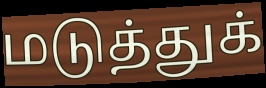
மடுத்துக்